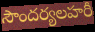
సౌందర్యలహరీ